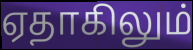
ஏதாகிலும்